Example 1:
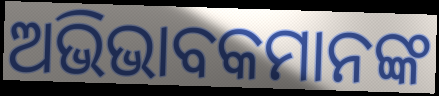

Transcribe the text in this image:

ଅଭିଭାବକମାନଙ୍କ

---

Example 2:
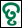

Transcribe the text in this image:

ତୃ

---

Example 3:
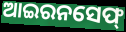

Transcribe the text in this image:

ଆଇରନସେଫ୍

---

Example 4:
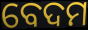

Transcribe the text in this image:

ବେଦମ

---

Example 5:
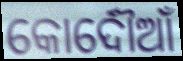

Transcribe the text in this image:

କୋର୍ଦୌଆଁ